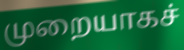
முறையாகச்